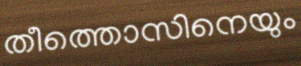
തീത്തൊസിനെയും